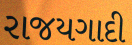
રાજયગાદી